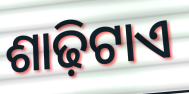
ଶାଢ଼ିଟାଏ